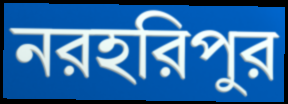
নরহরিপুর